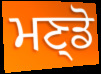
ਮਣ੍ਡੋ